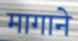
मागाने